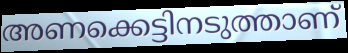
അണക്കെട്ടിനടുത്താണ്